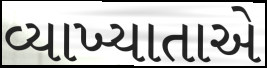
વ્યાખ્યાતાએ